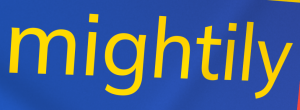
mightily